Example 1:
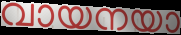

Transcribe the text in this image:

വായനയാ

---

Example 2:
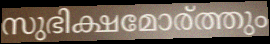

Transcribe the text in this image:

സുഭിക്ഷമോര്ത്തും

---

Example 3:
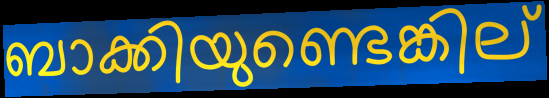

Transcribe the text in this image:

ബാക്കിയുണ്ടെങ്കില്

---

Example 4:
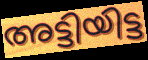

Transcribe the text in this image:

അട്ടിയിട്ട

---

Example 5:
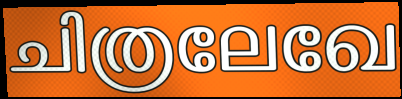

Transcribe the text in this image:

ചിത്രലേഖേ